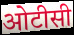
ओटीसी